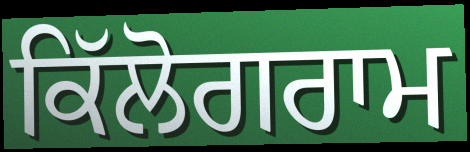
ਕਿੱਲੋਗਰਾਮ